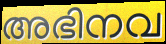
അഭിനവ